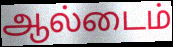
ஆல்டைம்